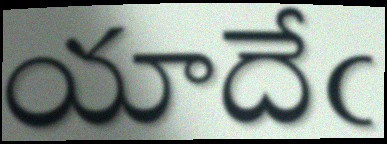
యాదేఁ